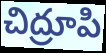
చిద్రూపి